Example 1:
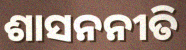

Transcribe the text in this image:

ଶାସନନୀତି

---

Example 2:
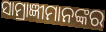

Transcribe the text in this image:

ସାମ୍ରାଜ୍ଞୀମାନଙ୍କର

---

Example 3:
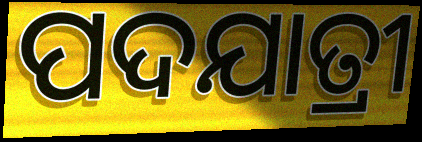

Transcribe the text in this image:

ପଦଯାତ୍ରୀ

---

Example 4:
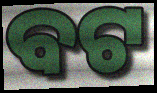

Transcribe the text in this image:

ବଟ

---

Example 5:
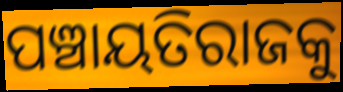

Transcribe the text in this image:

ପଞ୍ଚାୟତିରାଜକୁ